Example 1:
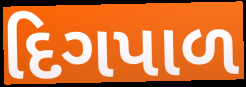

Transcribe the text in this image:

દિગપાળ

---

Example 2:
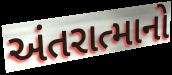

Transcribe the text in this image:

અંતરાત્માનો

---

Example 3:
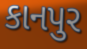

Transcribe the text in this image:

કાનપુર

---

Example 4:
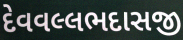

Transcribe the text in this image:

દેવવલ્લભદાસજી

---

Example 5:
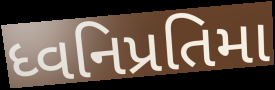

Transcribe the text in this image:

ધ્વનિપ્રતિમા